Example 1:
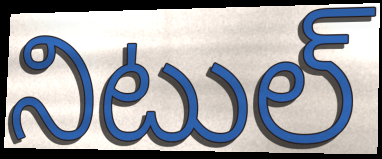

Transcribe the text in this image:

నిటుల్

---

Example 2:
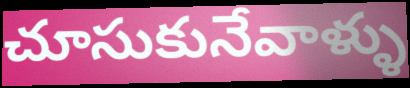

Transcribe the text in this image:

చూసుకునేవాళ్ళు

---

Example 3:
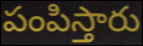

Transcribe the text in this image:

పంపిస్తారు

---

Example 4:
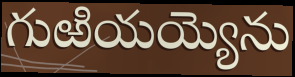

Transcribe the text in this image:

గుఱియయ్యెను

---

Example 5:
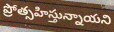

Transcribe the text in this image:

ప్రోత్సహిస్తున్నాయని